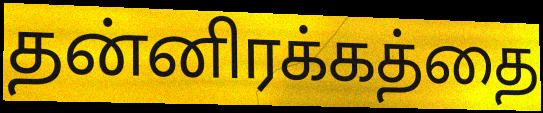
தன்னிரக்கத்தை